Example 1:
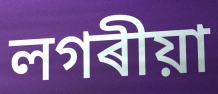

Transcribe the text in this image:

লগৰীয়া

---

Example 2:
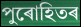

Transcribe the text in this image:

পুৰোহিতৰ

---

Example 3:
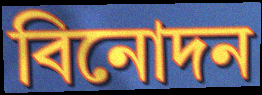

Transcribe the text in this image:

বিনোদন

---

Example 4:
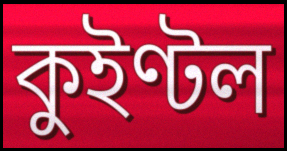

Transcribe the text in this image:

কুইণ্টল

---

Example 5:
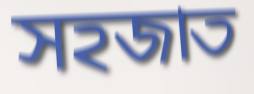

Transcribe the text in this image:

সহজাত